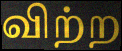
விற்ற